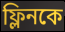
ফ্লিনকে